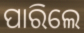
ପାରିଲେ